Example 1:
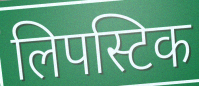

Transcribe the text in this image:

लिपस्टिक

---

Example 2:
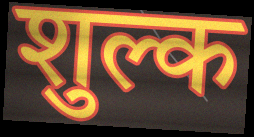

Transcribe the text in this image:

शुल्‍क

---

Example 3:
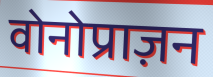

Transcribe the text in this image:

वोनोप्राज़न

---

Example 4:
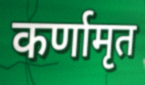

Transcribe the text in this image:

कर्णामृत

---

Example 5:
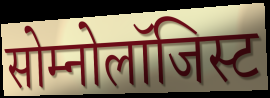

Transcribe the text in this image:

सोम्नोलॉजिस्ट